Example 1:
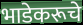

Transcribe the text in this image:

भाडेकरूचे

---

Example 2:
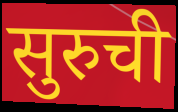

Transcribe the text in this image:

सुरुची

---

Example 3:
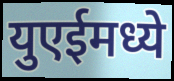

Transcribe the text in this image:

युएईमध्ये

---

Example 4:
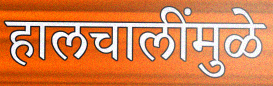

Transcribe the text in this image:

हालचालींमुळे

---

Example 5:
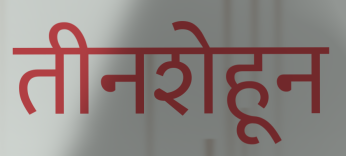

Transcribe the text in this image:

तीनशेहून